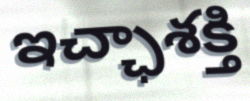
ఇచ్ఛాశక్తి